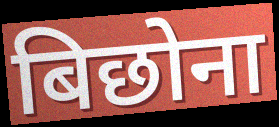
बिछोना